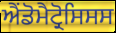
ਐਂਡੋਮੈਟ੍ਰੋਸਿਸਸ